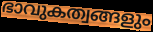
ഭാവുകത്വങ്ങളും